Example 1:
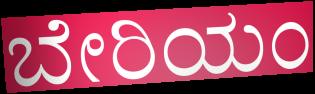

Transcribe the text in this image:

ಬೇರಿಯಂ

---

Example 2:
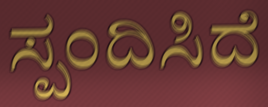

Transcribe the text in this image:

ಸ್ಪಂದಿಸಿದೆ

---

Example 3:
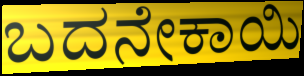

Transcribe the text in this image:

ಬದನೇಕಾಯಿ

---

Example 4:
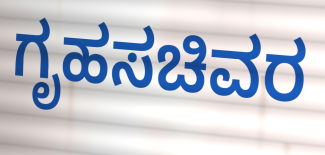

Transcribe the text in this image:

ಗೃಹಸಚಿವರ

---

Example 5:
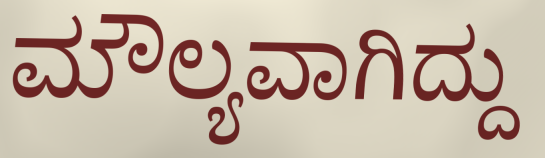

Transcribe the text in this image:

ಮೌಲ್ಯವಾಗಿದ್ದು